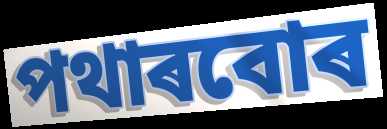
পথাৰবোৰ